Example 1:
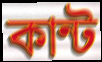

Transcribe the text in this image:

কান্ট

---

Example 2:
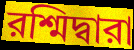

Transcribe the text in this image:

রশ্মিদ্বারা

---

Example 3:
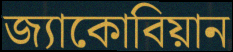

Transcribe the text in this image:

জ্যাকোবিয়ান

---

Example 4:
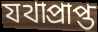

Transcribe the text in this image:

যথাপ্রাপ্ত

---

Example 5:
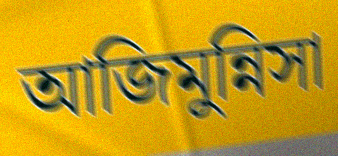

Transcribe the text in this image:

আজিমুন্নিসা